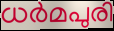
ധർമപുരി